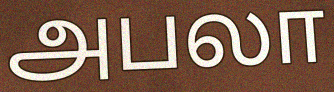
அபலா